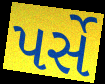
પર્સે